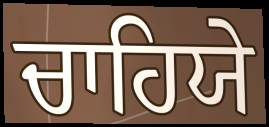
ਚਾਹਿਯੇ